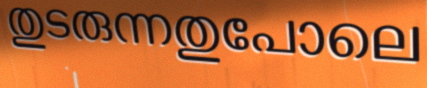
തുടരുന്നതുപോലെ